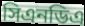
সিএনডিএ